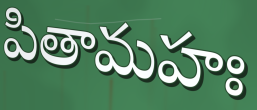
పితామహః